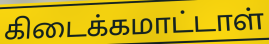
கிடைக்கமாட்டாள்